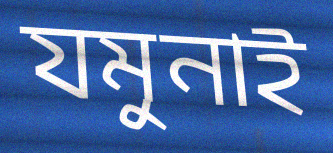
যমুনাই